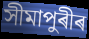
সীমাপুৰীৰ